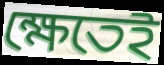
ক্ষেতেই